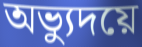
অভ্যুদয়ে